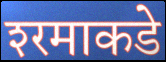
श्रमाकडे